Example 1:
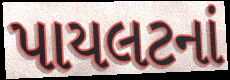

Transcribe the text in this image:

પાયલટનાં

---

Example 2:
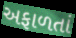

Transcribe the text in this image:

અફાળતાં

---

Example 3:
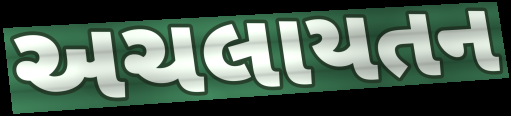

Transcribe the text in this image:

અચલાયતન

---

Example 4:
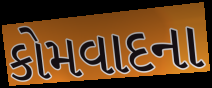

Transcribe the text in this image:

કોમવાદના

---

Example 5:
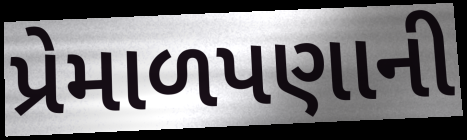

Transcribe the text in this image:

પ્રેમાળપણાની